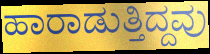
ಹಾರಾಡುತ್ತಿದ್ದವು